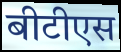
बीटीएस